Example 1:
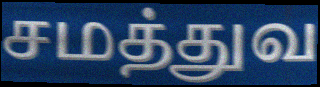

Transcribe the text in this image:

சமத்துவ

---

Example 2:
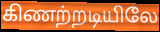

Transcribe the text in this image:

கிணற்றடியிலே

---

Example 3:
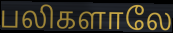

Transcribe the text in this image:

பலிகளாலே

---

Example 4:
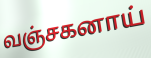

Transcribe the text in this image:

வஞ்சகனாய்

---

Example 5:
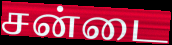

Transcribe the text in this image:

சன்டை